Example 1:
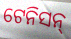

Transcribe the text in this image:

ଟେନିସନ୍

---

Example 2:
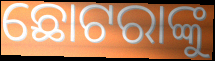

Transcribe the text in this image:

ଛୋଟରାଙ୍କୁ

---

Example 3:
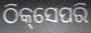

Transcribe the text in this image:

ଠିକ୍‌ସେପରି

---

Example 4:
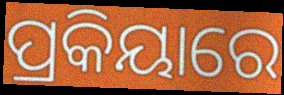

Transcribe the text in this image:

ପ୍ରକିୟାରେ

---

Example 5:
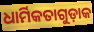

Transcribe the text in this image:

ଧାର୍ମିକତାଗୁଡ଼ାକ